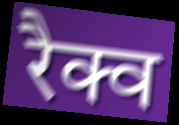
रैक्व